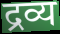
द्रव्य